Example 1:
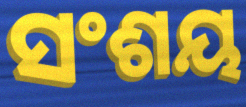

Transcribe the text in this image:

ସଂଶୟ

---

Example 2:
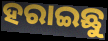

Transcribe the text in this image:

ହରାଇଛୁ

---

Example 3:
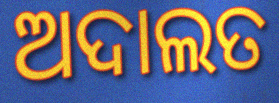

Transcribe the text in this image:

ଅଦାଲତ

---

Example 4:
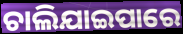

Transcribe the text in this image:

ଚାଲିଯାଇପାରେ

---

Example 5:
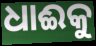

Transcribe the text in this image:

ଧାଈକୁ